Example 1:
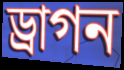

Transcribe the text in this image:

ড্রাগন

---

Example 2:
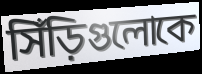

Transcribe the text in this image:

সিঁড়িগুলোকে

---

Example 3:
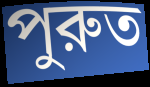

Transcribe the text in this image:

পুরুত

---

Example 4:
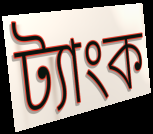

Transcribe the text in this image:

ট্যাংক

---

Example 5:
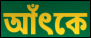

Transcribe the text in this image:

আঁৎকে